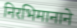
निरभिमानाने